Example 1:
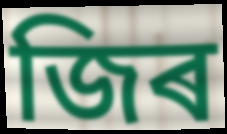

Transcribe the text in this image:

জিৰ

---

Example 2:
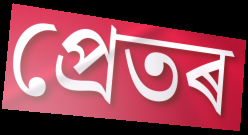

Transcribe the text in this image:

প্ৰেতৰ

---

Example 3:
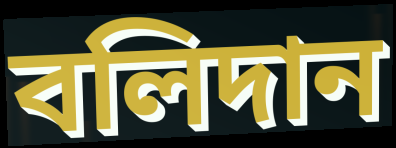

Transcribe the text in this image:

বলিদান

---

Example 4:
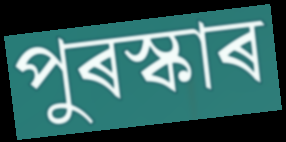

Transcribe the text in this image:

পুৰস্কাৰ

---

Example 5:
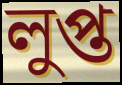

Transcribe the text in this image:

লুপ্ত